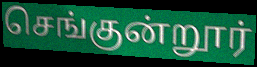
செங்குன்றூர்